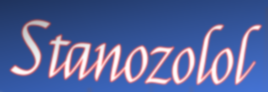
Stanozolol